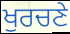
ਖੁਰਚਣੇ